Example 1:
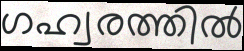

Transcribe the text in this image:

ഗഹ്വരത്തിൽ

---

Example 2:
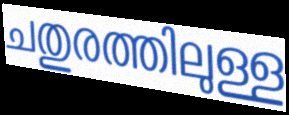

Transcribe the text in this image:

ചതുരത്തിലുള്ള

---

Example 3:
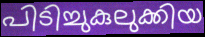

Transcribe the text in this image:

പിടിച്ചുകുലുക്കിയ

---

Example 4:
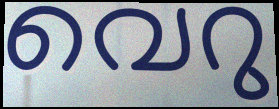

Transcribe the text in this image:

വെറു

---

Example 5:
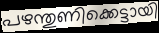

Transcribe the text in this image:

പഴന്തുണിക്കെട്ടായി